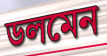
ডলমেন